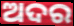
ଅଦର